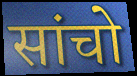
सांचो